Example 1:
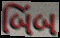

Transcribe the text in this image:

બિંબ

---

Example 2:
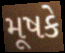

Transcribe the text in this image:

મૂષકે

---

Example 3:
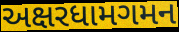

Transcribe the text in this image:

અક્ષરધામગમન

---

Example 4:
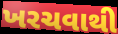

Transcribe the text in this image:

ખરચવાથી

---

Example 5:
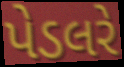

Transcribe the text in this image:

પેડલરે